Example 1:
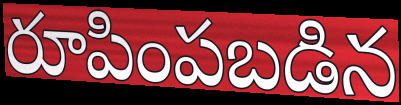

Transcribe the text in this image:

రూపింపబడిన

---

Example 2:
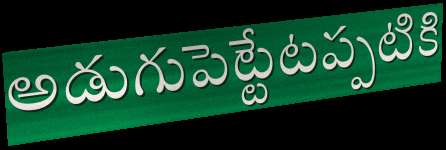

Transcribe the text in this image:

అడుగుపెట్టేటప్పటికి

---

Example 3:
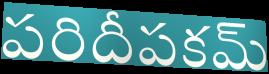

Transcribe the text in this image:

పరిదీపకమ్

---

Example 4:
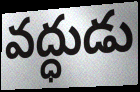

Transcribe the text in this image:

వద్ధుడు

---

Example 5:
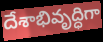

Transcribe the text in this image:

దేశాభివృద్ధిగా